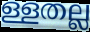
ള്ളതല്ല